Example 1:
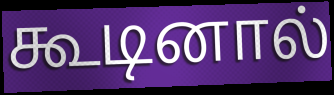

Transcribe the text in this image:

கூடினால்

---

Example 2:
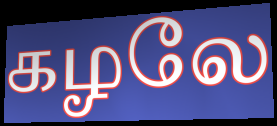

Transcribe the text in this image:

கழலே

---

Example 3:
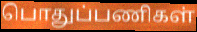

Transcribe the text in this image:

பொதுப்பணிகள்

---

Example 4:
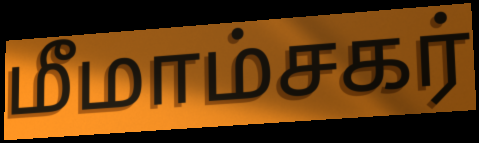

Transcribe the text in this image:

மீமாம்சகர்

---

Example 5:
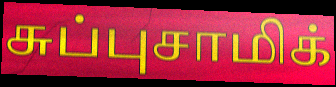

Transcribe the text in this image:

சுப்புசாமிக்